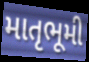
માતૃભૂમી